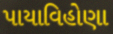
પાયાવિહોણા